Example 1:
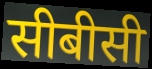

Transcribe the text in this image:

सीबीसी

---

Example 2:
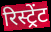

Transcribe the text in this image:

रिस्ट्रेंट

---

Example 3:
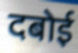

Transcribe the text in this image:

दबोई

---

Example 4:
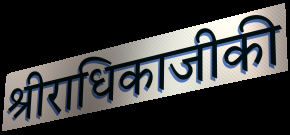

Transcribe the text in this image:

श्रीराधिकाजीकी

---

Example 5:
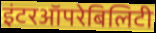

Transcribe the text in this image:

इंटरऑपरेबिलिटी